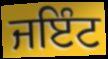
ਜਇੰਟ